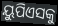
ୟୁପିଏସକୁ